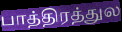
பாத்திரத்துல